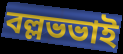
বল্লভভাই